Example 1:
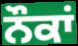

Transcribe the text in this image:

ਨੌਕਾਂ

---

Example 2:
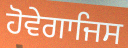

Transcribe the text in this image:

ਹੋਵੇਗਾਜਿਸ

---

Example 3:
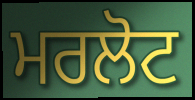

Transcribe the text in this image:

ਮਰਲੋਟ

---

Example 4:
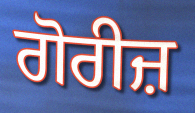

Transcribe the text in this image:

ਗੋਰੀਜ਼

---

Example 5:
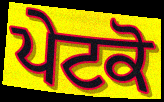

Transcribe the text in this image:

ਪੇਟਕੋ